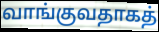
வாங்குவதாகத்